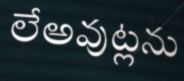
లేఅవుట్లను